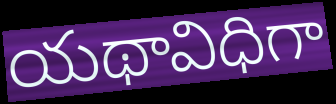
యథావిధిగా